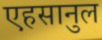
एहसानुल